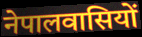
नेपालवासियों